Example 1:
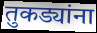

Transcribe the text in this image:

तुकड्यांना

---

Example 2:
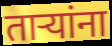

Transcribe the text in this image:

तार्‍यांना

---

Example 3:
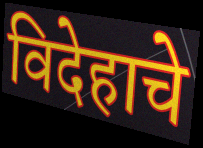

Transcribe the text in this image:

विदेहाचे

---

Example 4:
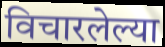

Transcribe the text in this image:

विचारलेल्या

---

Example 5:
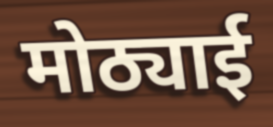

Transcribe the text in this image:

मोठ्याई